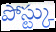
పోస్ట్కు